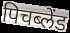
पिचब्लेंड